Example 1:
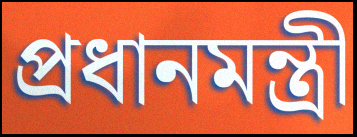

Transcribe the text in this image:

প্ৰধানমন্ত্ৰী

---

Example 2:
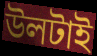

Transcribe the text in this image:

উলটাই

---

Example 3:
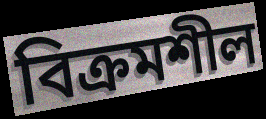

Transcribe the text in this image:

বিক্ৰমশীল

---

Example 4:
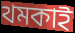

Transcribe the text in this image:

থমকাই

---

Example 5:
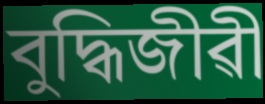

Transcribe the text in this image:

বুদ্ধিজীৱী